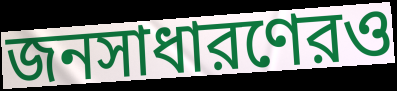
জনসাধারণেরও